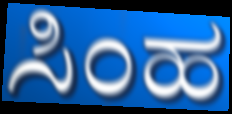
ಸಿಂಹ